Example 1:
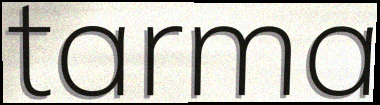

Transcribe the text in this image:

tarma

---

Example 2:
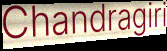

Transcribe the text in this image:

Chandragiri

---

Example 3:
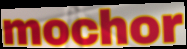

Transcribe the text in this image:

mochor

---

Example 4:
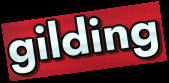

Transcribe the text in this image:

gilding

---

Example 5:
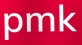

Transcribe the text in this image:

pmk